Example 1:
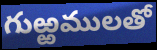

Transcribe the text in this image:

గుఱ్ఱములతో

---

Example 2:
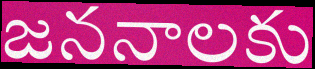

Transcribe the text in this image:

జననాలకు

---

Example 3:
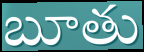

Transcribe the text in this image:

బూతు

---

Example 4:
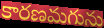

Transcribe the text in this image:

కారణమగును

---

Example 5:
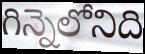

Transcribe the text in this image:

గిన్నెలోనిది